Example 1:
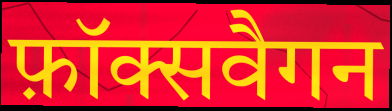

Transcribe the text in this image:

फ़ॉक्सवैगन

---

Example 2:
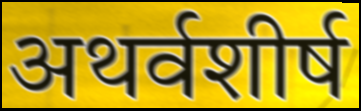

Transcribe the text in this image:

अथर्वशीर्ष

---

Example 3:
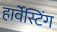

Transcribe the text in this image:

हार्वेस्टिंग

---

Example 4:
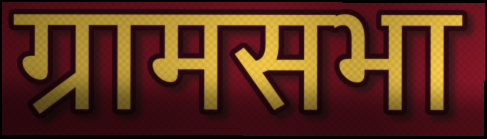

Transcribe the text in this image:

ग्रामसभा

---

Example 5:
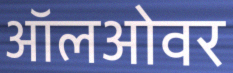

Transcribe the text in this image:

ऑलओवर